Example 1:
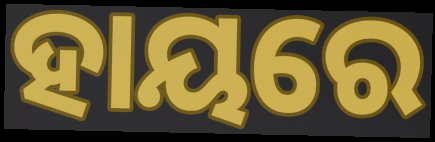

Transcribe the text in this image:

ହାୟରେ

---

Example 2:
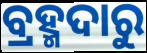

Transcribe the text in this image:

ବ୍ରହ୍ମଦାରୁ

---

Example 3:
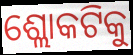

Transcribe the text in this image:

ଶ୍ଲୋକଟିକୁ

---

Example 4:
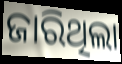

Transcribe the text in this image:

ଜାରିଥିଲା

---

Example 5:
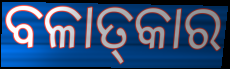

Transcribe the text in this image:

ବଳାତ୍‌କାର